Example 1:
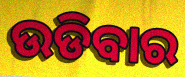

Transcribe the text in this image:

ଉଡିବାର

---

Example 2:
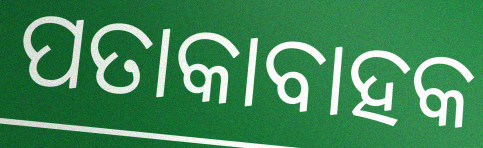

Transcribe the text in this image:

ପତାକାବାହକ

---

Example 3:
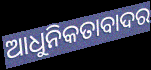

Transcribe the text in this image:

ଆଧୁନିକତାବାଦର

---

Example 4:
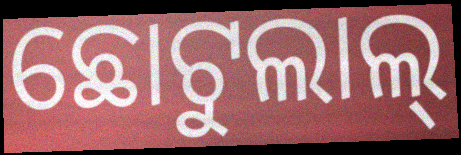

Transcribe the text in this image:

ଛୋଟୁଲାଲ୍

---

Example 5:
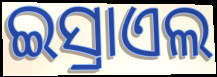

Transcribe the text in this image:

ଇସ୍ରାଏଲ